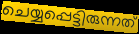
ചെയ്യപ്പെട്ടിരുന്നത്